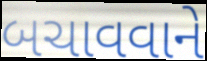
બચાવવાને